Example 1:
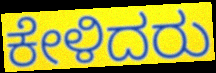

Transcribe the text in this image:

ಕೇಳಿದರು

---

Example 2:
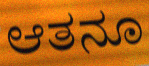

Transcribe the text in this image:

ಆತನೂ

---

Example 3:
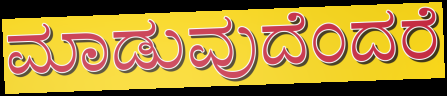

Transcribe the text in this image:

ಮಾಡುವುದೆಂದರೆ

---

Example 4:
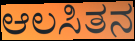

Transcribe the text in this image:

ಆಲಸಿತನ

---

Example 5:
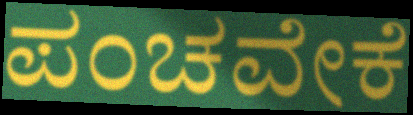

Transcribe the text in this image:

ಪಂಚವೇಕೆ